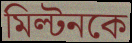
মিল্টনকে